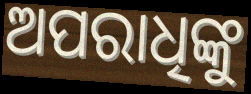
ଅପରାଧିଙ୍କୁ